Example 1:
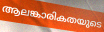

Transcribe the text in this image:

ആലങ്കാരികതയുടെ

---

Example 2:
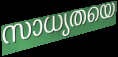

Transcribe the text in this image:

സാധ്യതയെ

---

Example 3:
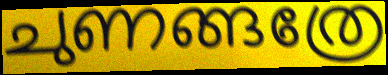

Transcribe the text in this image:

ചുണങ്ങത്രേ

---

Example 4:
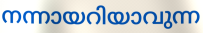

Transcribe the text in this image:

നന്നായറിയാവുന്ന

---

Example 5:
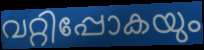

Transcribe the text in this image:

വറ്റിപ്പോകയും